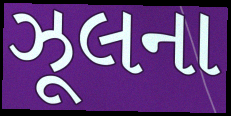
ઝૂલના